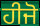
ਹੀਜੋ